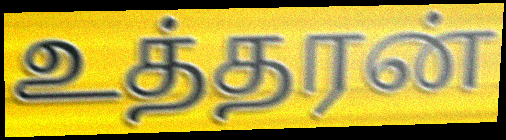
உத்தரன்